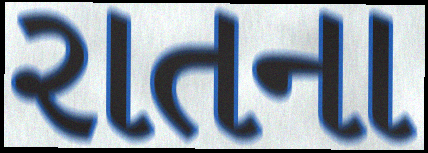
રાતના